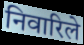
निवारिले